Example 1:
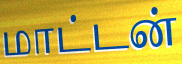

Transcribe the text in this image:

மாட்டன்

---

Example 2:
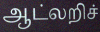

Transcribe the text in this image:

ஆட்லறிச்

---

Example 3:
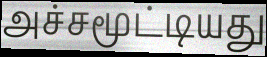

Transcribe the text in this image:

அச்சமூட்டியது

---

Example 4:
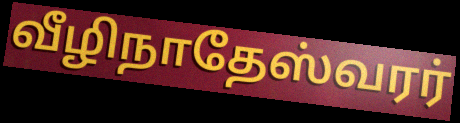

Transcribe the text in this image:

வீழிநாதேஸ்வரர்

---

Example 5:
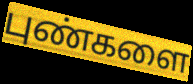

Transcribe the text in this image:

புண்களை